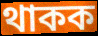
থাকক